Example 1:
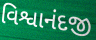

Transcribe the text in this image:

વિશ્વાનંદજી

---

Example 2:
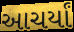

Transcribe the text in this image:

આચર્યાં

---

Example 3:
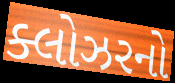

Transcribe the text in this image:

ક્લોઝરનો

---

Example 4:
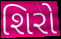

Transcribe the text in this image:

શિરો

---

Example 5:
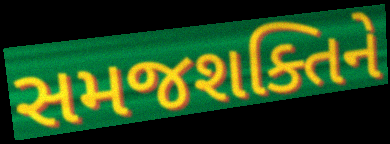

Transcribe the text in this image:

સમજશક્તિને